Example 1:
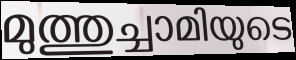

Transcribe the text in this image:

മുത്തുച്ചാമിയുടെ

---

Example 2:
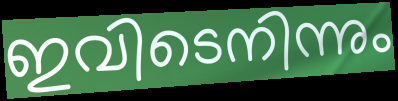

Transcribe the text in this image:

ഇവിടെനിന്നും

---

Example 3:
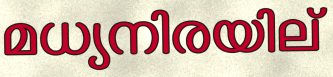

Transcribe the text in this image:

മധ്യനിരയില്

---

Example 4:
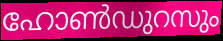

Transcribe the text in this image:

ഹോൺഡുറസും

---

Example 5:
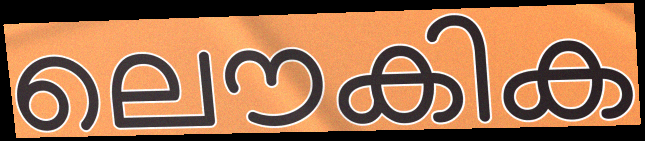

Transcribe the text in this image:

ലൌകിക